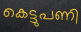
കെട്ടുപണി